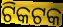
ଟିକଟକ